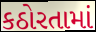
કઠોરતામાં